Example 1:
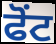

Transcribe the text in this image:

ਫੋਂਟ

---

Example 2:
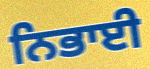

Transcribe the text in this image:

ਨਿਭਾਈ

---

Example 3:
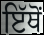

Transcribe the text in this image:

ਇੱਥੋਂ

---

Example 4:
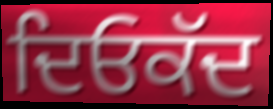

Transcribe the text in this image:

ਦਿਓਕੱਦ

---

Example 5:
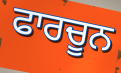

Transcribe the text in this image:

ਫਾਰਚੂਨ